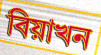
বিয়াখন